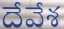
దేవేశ